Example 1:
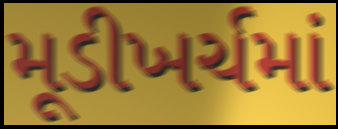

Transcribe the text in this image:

મૂડીખર્ચમાં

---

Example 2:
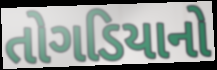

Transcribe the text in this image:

તોગડિયાનો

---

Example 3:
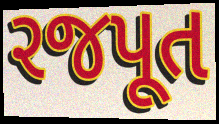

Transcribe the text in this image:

રજપૂત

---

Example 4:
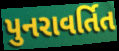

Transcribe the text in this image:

પુનરાવર્તિત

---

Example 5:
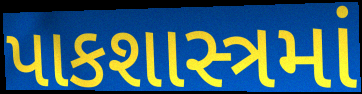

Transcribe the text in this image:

પાકશાસ્ત્રમાં